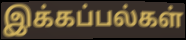
இக்கப்பல்கள்